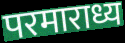
परमाराध्य